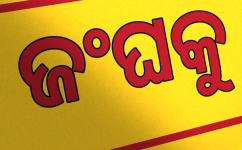
ଜଂଘକୁ